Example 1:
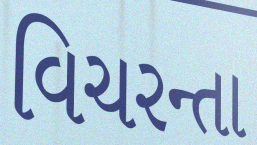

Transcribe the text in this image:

વિચરન્તા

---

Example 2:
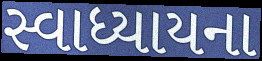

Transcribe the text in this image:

સ્વાધ્યાયના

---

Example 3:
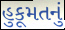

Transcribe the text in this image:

હુકૂમતનું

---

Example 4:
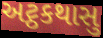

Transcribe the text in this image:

અટ્ઠકથાસુ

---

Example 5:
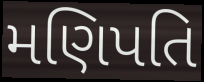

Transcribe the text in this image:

મણિપતિ